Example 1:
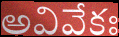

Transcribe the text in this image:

అవివేకః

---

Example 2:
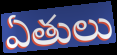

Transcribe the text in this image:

ఏతులు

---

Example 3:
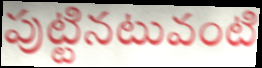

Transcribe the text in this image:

పుట్టినటువంటి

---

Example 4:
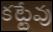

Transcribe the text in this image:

కట్టేవు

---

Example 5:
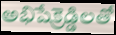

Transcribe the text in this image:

అభిషేక్రెడ్డిలతో